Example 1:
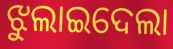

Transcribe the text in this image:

ଝୁଲାଇଦେଲା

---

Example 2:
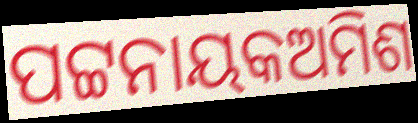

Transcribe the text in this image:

ପଟ୍ଟନାୟକଅମିଶ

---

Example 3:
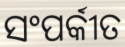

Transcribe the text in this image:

ସଂପର୍କୀତ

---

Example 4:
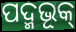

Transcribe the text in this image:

ପଦ୍ମଭୂକ୍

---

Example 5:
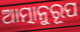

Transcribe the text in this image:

ଆତ୍ମାନୁରୂପ